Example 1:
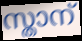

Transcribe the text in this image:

സ്താന്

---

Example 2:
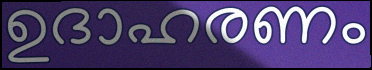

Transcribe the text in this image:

ഉദാഹരണം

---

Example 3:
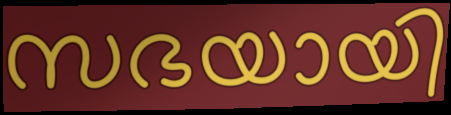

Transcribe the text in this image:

സഭയായി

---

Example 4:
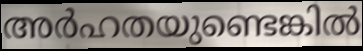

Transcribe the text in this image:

അർഹതയുണ്ടെങ്കിൽ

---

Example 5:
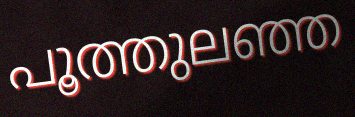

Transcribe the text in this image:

പൂത്തുലഞ്ഞ